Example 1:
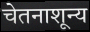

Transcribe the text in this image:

चेतनाशून्य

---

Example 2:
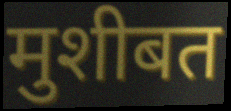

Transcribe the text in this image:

मुशीबत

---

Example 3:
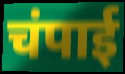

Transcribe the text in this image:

चंपाई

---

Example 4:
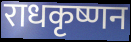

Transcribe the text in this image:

राधकृष्णन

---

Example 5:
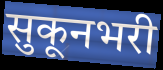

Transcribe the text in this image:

सुकूनभरी